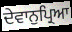
ਦੇਵਾਨੁਪ੍ਰਿਆ